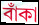
বাঁকা